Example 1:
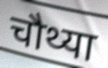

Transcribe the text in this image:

चौथ्या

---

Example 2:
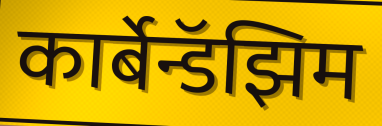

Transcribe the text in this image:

कार्बेन्डॅझिम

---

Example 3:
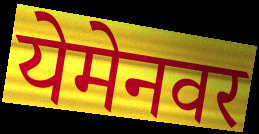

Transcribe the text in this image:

येमेनवर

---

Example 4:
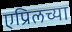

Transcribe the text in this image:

एप्रिलच्या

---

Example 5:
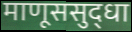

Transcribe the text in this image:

माणूससुद्धा